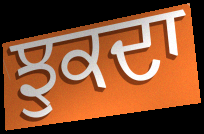
ਝੁਕਦਾ